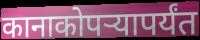
कानाकोपऱ्यापर्यंत